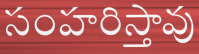
సంహరిస్తావు